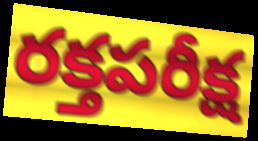
రక్తపరీక్ష